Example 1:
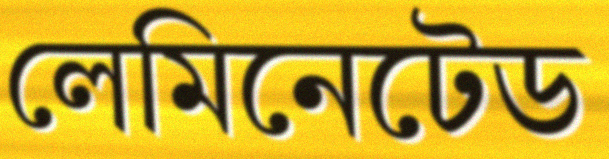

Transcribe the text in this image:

লেমিনেটেড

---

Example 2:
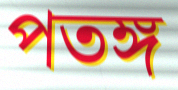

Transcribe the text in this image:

পতঙ্গ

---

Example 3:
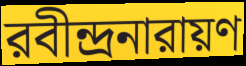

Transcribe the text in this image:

রবীন্দ্রনারায়ণ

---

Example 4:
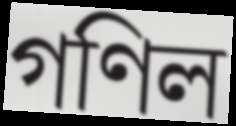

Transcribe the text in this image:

গণিল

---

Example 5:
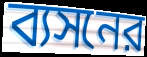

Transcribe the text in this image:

ব্যসনের